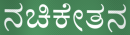
ನಚಿಕೇತನ